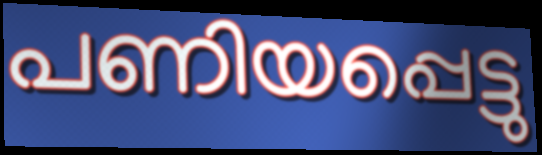
പണിയപ്പെട്ടു